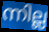
ന്നില്ല